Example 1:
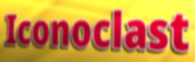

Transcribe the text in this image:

Iconoclast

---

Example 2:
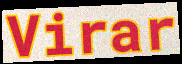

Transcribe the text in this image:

Virar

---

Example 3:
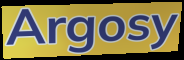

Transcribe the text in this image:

Argosy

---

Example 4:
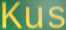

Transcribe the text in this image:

Kus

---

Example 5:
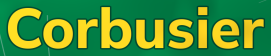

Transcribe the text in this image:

Corbusier